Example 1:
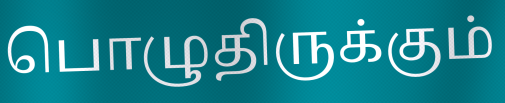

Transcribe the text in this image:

பொழுதிருக்கும்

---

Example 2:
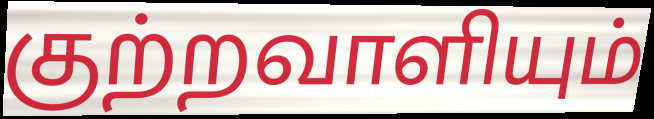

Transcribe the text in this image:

குற்றவாளியும்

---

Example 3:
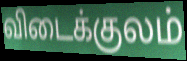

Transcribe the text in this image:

விடைக்குலம்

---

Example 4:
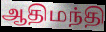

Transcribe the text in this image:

ஆதிமந்தி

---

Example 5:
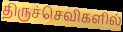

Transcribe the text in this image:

திருச்செவிகளில்